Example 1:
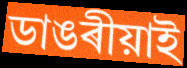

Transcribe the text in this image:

ডাঙৰীয়াই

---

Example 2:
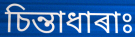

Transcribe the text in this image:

চিন্তাধাৰাঃ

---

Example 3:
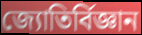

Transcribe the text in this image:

জ্যোতিৰ্বিজ্ঞান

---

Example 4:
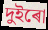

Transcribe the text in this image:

দুইৰো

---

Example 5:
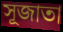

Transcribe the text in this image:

সূজাতা